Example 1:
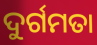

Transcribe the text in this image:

ଦୁର୍ଗମତା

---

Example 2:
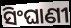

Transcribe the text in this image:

ସିଂଘାଣୀ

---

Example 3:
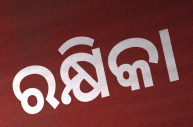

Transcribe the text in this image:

ରକ୍ଷିକା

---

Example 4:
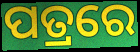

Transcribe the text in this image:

ପତ୍ରରେ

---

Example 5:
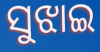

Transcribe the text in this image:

ସୁଝାଇ